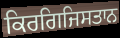
ਕਿਰਗਿਜਿਸਤਾਨ